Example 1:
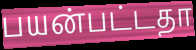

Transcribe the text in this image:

பயன்பட்டதா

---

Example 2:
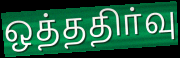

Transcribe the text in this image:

ஒத்ததிர்வு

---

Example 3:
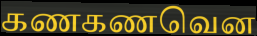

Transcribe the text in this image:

கணகணவென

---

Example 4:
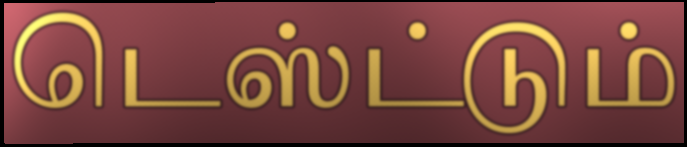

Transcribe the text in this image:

டெஸ்ட்டும்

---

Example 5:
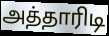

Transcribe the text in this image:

அத்தாரிடி